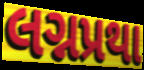
લગ્નપ્રથા